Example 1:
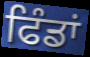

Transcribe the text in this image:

ਫਿੰਡਾਂ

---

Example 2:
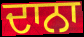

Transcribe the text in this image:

ਦਾਨਾ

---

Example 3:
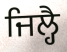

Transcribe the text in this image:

ਜਿਲ੍ਹੈ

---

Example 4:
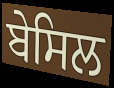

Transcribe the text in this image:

ਬੇਸਿਲ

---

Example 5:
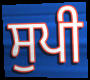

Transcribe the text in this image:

ਸੁਪੀ